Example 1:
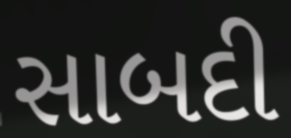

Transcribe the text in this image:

સાબદી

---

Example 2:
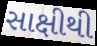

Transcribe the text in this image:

સાક્ષીથી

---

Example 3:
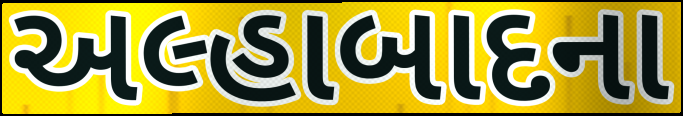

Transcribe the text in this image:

અલ્હાબાદના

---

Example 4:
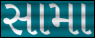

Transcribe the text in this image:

સામા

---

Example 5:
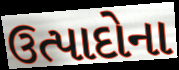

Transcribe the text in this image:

ઉત્પાદોના